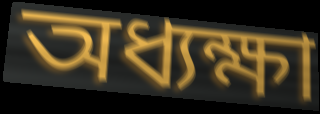
অধ্যক্ষা